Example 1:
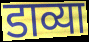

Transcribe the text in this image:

डाव्या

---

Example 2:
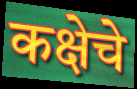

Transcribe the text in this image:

कक्षेचे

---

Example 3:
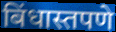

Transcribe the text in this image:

बिंधास्तपणे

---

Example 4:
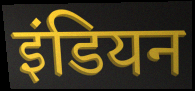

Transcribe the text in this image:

इंडियन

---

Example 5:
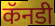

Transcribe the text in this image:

कॅनडी